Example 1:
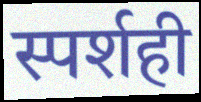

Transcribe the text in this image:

स्पर्शही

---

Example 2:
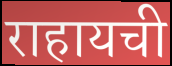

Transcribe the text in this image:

राहायची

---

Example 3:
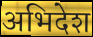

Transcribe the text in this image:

अभिदेश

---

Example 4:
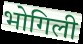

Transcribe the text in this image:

भोगिली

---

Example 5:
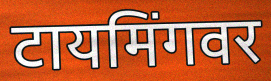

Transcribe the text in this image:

टायमिंगवर